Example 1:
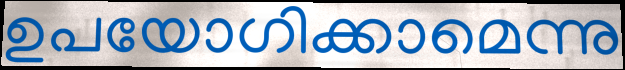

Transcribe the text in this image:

ഉപയോഗിക്കാമെന്നു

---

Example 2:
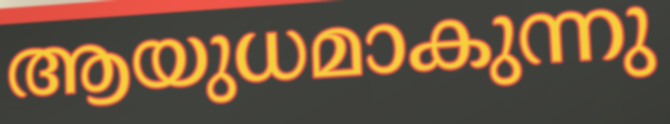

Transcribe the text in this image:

ആയുധമാകുന്നു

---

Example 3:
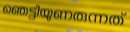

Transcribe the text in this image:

ഞെട്ടിയുണരുന്നത്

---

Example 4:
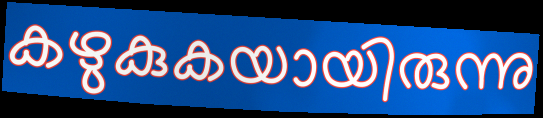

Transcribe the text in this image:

കഴുകുകയായിരുന്നു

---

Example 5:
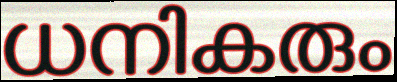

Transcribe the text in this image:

ധനികരും